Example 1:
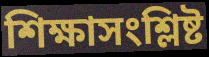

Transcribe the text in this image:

শিক্ষাসংশ্লিষ্ট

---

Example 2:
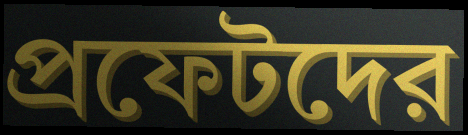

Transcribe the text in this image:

প্রফেটদের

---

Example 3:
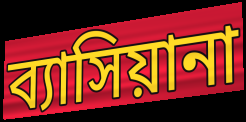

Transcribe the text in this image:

ব্যাসিয়ানা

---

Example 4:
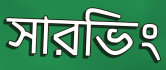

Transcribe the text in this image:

সারভিং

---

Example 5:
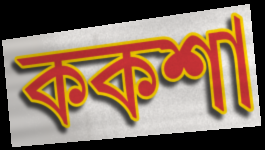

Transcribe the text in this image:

ককশা